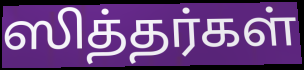
ஸித்தர்கள்